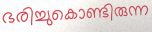
ഭരിച്ചുകൊണ്ടിരുന്ന